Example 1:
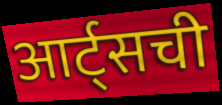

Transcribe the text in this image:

आर्ट्सची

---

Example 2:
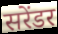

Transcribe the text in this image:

सरेंडर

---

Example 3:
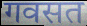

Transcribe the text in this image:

गवसत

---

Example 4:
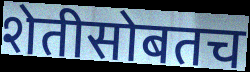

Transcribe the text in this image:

शेतीसोबतच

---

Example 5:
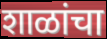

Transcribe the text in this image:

शाळांचा